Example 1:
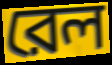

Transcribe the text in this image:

রেল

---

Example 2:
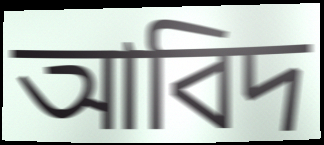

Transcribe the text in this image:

আবিদ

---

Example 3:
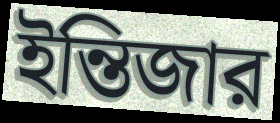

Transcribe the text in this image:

ইন্তিজার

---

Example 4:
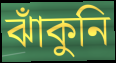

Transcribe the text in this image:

ঝাঁকুনি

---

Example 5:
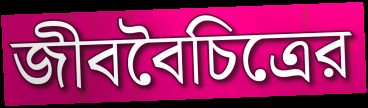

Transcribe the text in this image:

জীববৈচিত্রের